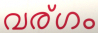
വര്ഗം